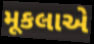
મૂકલાએ